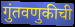
गुंतवणुकीची